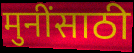
मुनींसाठी